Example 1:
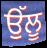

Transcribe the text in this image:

ਉੱਲੂ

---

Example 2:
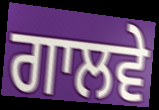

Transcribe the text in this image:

ਗਾਲਵੇ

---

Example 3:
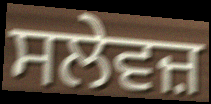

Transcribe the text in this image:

ਸਲੇਵਜ਼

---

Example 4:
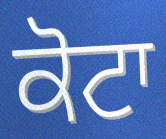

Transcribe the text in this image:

ਕੋਟਾ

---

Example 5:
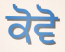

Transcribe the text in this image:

ਕੋਵੋ